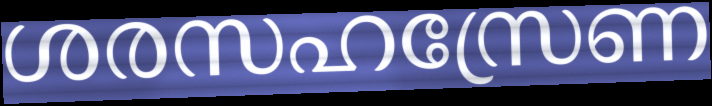
ശരസഹസ്രേണ